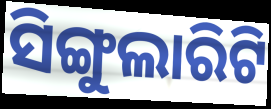
ସିଙ୍ଗୁଲାରିଟି